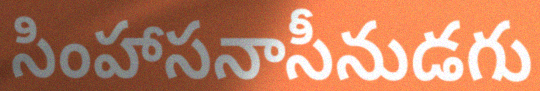
సింహాసనాసీనుడగు